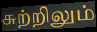
சுற்றிலும்